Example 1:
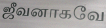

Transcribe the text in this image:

ஜீவனாகவே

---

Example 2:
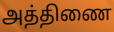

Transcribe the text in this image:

அத்திணை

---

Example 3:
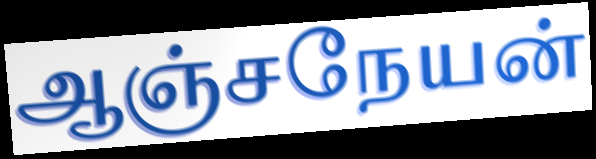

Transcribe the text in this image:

ஆஞ்சநேயன்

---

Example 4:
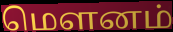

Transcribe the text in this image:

மௌனம்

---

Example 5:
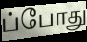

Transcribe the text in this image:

ப்போது